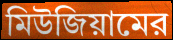
মিউজিয়ামের